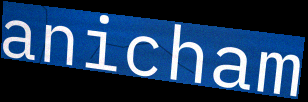
anicham